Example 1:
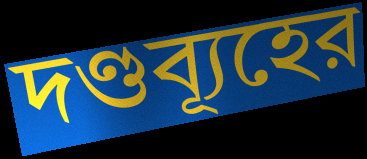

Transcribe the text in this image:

দণ্ডব্যূহের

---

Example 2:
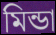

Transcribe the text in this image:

মিন্ডা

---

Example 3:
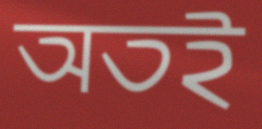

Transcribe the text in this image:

অতই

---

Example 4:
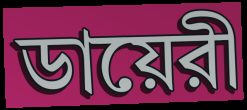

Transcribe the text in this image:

ডায়েরী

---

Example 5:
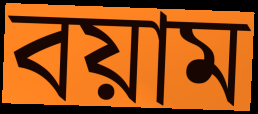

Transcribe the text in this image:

বয়াম